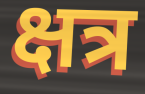
क्षत्र